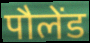
पौलेंड